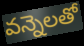
వన్నెలతో